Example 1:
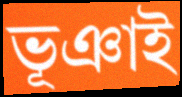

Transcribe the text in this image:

ভূঞাই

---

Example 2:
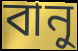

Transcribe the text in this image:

বানু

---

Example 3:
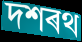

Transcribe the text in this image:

দশৰথ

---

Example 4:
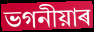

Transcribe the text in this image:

ভগনীয়াৰ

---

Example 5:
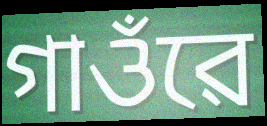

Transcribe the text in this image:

গাওঁৱে